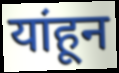
यांहून